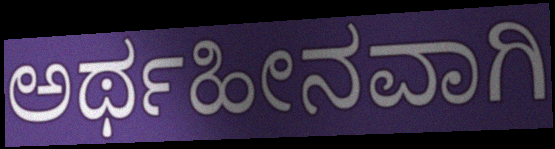
ಅರ್ಥಹೀನವಾಗಿ